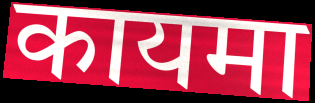
कायमा